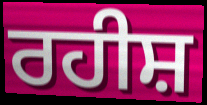
ਰਹੀਸ਼